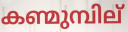
കണ്മുമ്പില്